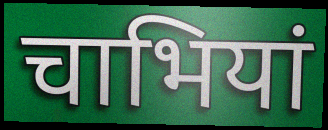
चाभियां